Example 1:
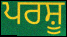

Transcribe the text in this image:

ਪਰਸ਼ੂ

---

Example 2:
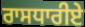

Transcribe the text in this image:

ਰਾਸਧਾਰੀਏ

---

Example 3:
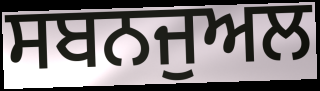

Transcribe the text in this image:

ਸਬਨਜੁਅਲ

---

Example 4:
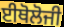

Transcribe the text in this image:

ਈਥੋਲੋਜੀ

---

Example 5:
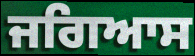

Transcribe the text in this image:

ਜਗਿਆਸ